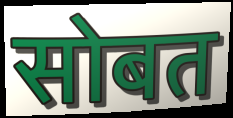
सोबत